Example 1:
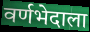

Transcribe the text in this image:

वर्णभेदाला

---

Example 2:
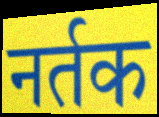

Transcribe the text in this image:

नर्तक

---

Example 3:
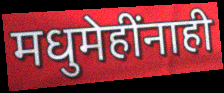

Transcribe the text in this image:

मधुमेहींनाही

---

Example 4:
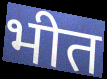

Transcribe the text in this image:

भीत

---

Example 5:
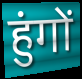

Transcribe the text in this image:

हुंगों